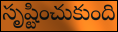
సృష్టించుకుంది